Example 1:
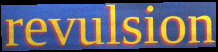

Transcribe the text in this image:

revulsion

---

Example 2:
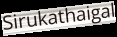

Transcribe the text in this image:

Sirukathaigal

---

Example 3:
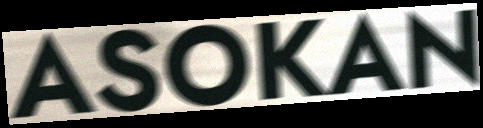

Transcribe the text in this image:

ASOKAN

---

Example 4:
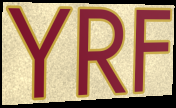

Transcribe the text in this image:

YRF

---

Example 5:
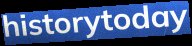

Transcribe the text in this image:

historytoday